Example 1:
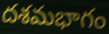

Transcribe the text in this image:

దశమభాగం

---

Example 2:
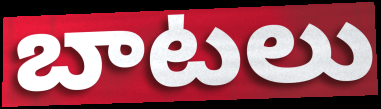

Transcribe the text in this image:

బాటలు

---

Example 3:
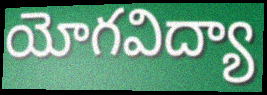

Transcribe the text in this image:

యోగవిద్యా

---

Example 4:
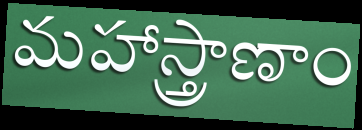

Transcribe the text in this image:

మహాస్త్రాణాం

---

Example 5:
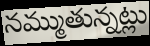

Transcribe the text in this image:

నమ్ముతున్నట్లు